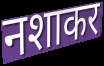
नशाकर